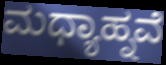
ಮಧ್ಯಾಹ್ನವೆ